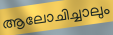
ആലോചിച്ചാലും